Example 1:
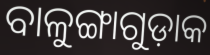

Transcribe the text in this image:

ବାଳୁଙ୍ଗାଗୁଡ଼ାକ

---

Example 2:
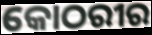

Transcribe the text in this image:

କୋଠରୀର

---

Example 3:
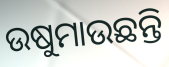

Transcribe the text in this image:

ଉଷୁମାଉଛନ୍ତି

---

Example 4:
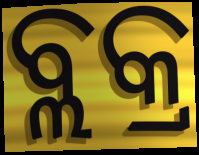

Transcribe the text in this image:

ବ୍ଲକ୍ର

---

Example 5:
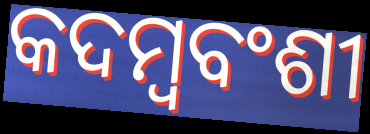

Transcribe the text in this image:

କଦମ୍ବବଂଶୀ